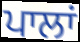
ਪਾਲਾਂ